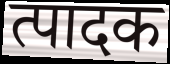
त्पादक